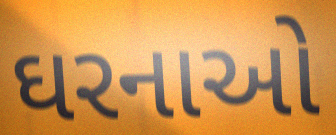
ઘરનાઓ